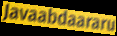
Javaabdaararu